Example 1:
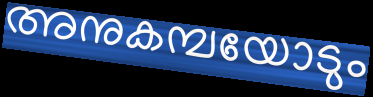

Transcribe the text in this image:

അനുകമ്പയോടും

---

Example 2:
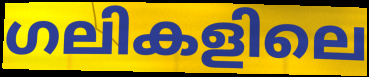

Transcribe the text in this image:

ഗലികളിലെ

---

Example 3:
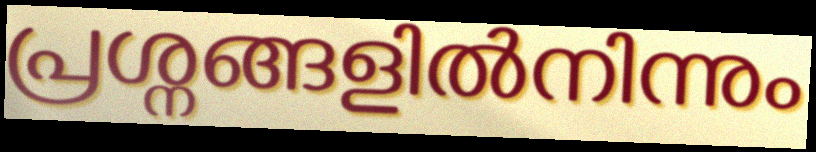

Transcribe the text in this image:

പ്രശ്നങ്ങളിൽനിന്നും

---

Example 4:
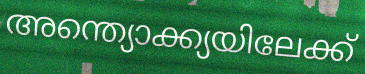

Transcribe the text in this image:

അന്ത്യൊക്ക്യയിലേക്ക്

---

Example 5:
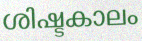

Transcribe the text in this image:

ശിഷ്ടകാലം